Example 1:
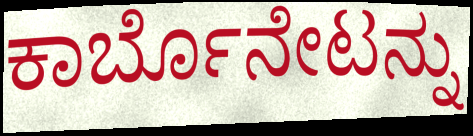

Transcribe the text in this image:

ಕಾರ್ಬೊನೇಟನ್ನು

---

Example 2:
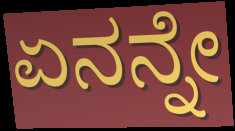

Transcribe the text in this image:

ಏನನ್ನೇ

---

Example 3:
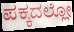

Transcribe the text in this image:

ಪಕ್ಕದಲ್ಲೋ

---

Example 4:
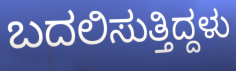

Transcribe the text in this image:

ಬದಲಿಸುತ್ತಿದ್ದಳು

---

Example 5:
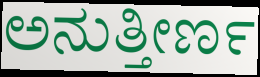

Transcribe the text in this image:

ಅನುತ್ತೀರ್ಣ